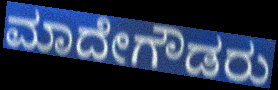
ಮಾದೇಗೌಡರು